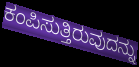
ಕಂಪಿಸುತ್ತಿರುವುದನ್ನು